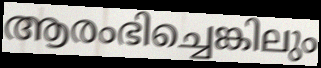
ആരംഭിച്ചെങ്കിലും